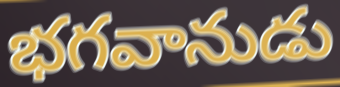
భగవానుడు